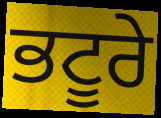
ਭਟੂਰੇ